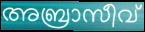
അബ്രാസീവ്